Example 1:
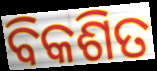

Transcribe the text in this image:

ବିକଶିତ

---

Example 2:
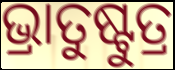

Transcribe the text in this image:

ଭ୍ରାତୁଷ୍ଟୁତ୍ର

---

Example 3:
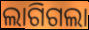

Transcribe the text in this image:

ଲାଗିଗଲା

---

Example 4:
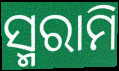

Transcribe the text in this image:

ସ୍ମରାମି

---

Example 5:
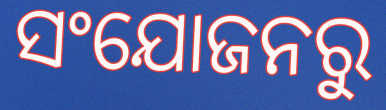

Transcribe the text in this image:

ସଂଯୋଜନରୁ